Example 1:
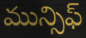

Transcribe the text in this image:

మున్సిఫ్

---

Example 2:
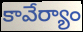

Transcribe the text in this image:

కావేర్యాం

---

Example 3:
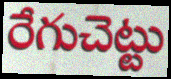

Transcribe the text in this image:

రేగుచెట్టు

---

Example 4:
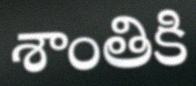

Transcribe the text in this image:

శాంతికి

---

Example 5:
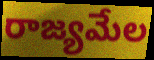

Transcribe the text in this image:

రాజ్యమేల